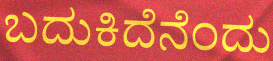
ಬದುಕಿದೆನೆಂದು